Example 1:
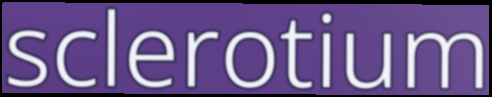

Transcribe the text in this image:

sclerotium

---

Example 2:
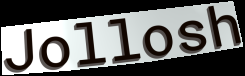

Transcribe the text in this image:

Jollosh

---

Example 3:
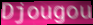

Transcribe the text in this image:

Djougou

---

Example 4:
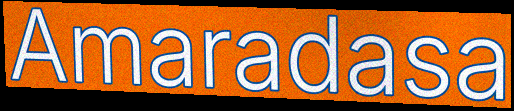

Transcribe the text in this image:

Amaradasa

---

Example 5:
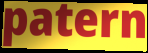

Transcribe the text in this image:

patern